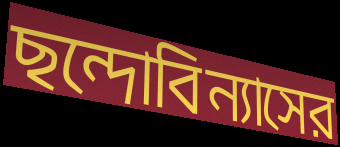
ছন্দোবিন্যাসের